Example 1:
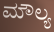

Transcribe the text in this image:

ಮೌಲ್ಯ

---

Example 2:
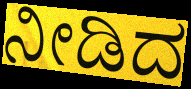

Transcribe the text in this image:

ನೀಡಿದ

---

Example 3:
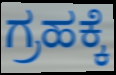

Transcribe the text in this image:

ಗ್ರಹಕ್ಕೆ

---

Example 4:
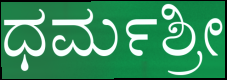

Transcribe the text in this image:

ಧರ್ಮಶ್ರೀ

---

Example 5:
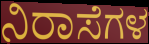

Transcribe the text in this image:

ನಿರಾಸೆಗಳ